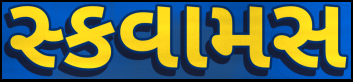
સ્કવામસ